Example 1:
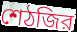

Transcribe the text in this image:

শেঠজির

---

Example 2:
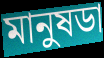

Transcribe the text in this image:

মানুষডা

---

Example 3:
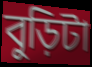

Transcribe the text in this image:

বুড়িটা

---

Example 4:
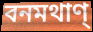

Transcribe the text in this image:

বনমথাণ্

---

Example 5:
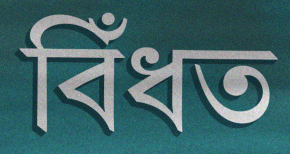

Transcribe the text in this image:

বিঁধত